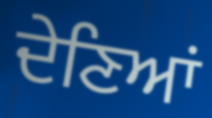
ਦੇਣਿਆਂ